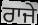
ਰਾਜੇ